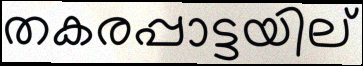
തകരപ്പാട്ടയില്